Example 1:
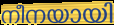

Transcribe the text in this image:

നീനയായി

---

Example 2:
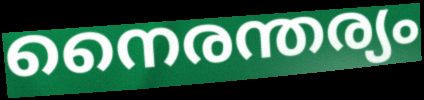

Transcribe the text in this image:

നൈരന്തര്യം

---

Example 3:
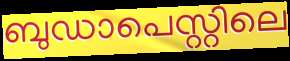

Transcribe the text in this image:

ബുഡാപെസ്റ്റിലെ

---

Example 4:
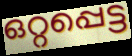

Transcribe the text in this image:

ഒറ്റപ്പെട്ട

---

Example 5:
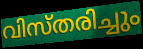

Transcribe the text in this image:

വിസ്തരിച്ചും